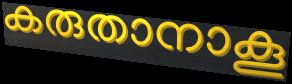
കരുതാനാകൂ